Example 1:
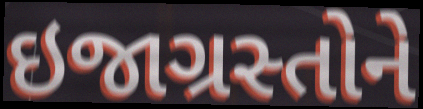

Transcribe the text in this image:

ઇજાગ્રસ્તોને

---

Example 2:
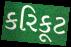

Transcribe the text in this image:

કરિકૂટ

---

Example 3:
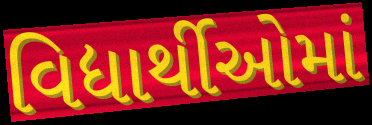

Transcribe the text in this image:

વિદ્યાર્થીઓમાં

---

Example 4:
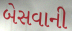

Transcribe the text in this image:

બેસવાની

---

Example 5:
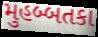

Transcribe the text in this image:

મુહબ્બતકા